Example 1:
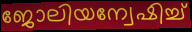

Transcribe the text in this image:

ജോലിയന്വേഷിച്ച്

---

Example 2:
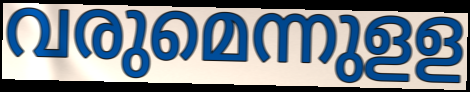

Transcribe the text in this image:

വരുമെന്നുളള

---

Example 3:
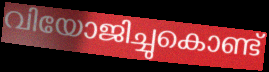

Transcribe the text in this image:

വിയോജിച്ചുകൊണ്ട്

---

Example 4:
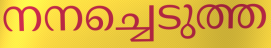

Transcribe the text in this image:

നനച്ചെടുത്ത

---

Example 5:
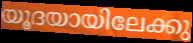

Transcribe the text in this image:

യൂദയായിലേക്കു